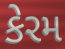
કેરમ